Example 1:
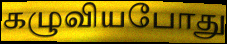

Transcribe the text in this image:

கழுவியபோது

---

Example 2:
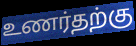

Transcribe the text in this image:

உணர்தற்கு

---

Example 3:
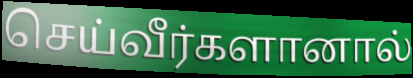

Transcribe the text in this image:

செய்வீர்களானால்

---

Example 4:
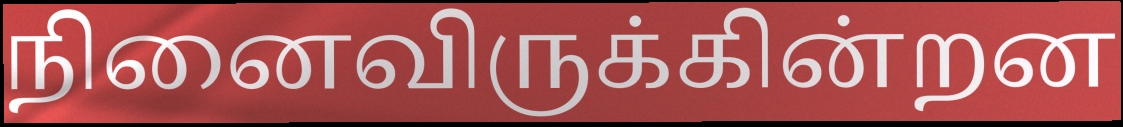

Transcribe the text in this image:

நினைவிருக்கின்றன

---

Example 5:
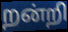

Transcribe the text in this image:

றன்றி